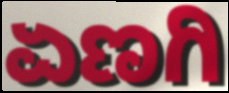
ಏಣಗಿ